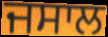
ਜਸਾਲ